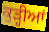
ਕੁੜ੍ਹੀਆਂ